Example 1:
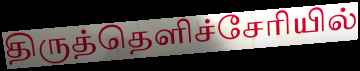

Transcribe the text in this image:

திருத்தெளிச்சேரியில்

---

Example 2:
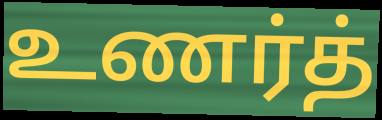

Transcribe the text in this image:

உணர்த்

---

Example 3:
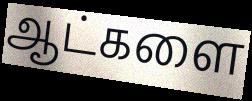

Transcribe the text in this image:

ஆட்களை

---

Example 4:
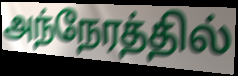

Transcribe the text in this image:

அந்நேரத்தில்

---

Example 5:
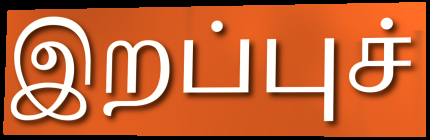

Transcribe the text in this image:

இறப்புச்